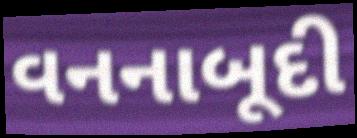
વનનાબૂદી